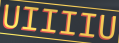
UIIIIU